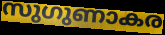
സുഗുണാകര